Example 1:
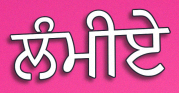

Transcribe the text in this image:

ਲੰਮੀਏ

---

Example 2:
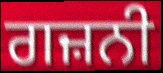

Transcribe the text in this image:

ਗਜ਼ਨੀ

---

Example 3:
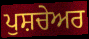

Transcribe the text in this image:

ਪੁਸ਼ਚੇਅਰ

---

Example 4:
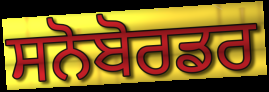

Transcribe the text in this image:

ਸਨੋਬੋਰਡਰ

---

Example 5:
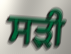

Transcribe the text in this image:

ਸੜੀ